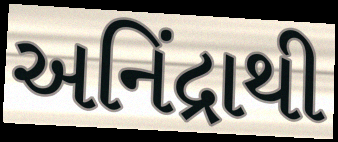
અનિંદ્રાથી